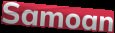
Samoan